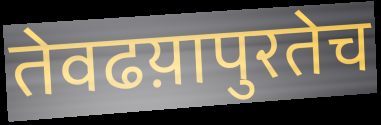
तेवढय़ापुरतेच